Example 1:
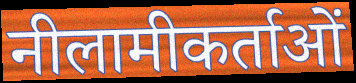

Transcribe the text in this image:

नीलामीकर्ताओं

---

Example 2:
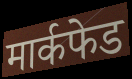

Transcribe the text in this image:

मार्कफेड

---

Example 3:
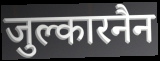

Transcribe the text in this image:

जुल्कारनैन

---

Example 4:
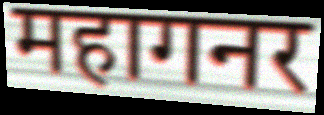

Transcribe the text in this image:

महागनर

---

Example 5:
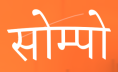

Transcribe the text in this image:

सोम्पो